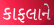
કાફલાને